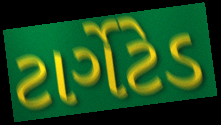
ટાર્ગેટેડ